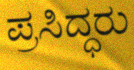
ಪ್ರಸಿದ್ಧರು